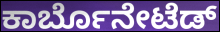
ಕಾರ್ಬೊನೇಟೆಡ್